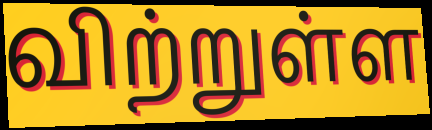
விற்றுள்ள